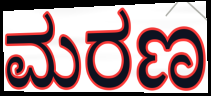
ಮರಣ